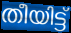
തീയിട്ട്